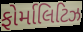
ફોર્માલિટિઝ